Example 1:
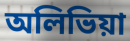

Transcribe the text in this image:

অলিভিয়া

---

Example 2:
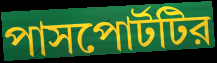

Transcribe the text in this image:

পাসপোর্টটির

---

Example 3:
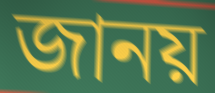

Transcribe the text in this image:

জানয়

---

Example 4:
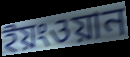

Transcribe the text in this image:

ইয়ংওয়ান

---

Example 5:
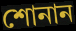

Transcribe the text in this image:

শোনান